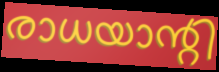
രാധയാന്റി